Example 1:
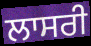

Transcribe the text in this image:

ਲਾਸਰੀ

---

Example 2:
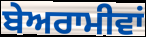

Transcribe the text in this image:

ਬੇਅਰਾਮੀਵਾਂ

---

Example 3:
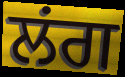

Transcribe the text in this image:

ਲਂਗ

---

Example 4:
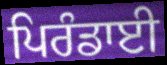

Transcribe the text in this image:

ਪਿਰੰਡਾਈ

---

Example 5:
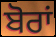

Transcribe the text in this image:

ਬੋਰਾਂ